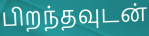
பிறந்தவுடன்